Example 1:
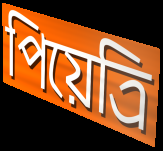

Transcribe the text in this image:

পিয়েত্রি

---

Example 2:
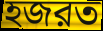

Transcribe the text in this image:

হজরত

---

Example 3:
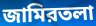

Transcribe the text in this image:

জামিরতলা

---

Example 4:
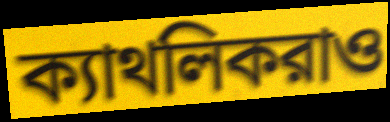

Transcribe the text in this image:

ক্যাথলিকরাও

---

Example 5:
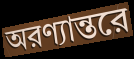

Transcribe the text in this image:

অরণ্যান্তরে